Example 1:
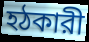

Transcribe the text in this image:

হঠকারী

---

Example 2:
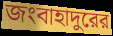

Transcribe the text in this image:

জংবাহাদুরের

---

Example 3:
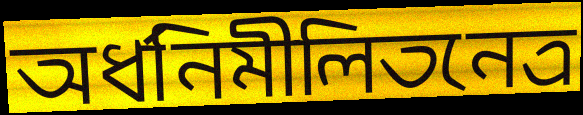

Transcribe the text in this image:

অর্ধনিমীলিতনেত্র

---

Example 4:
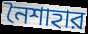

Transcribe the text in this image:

নৈশাহার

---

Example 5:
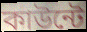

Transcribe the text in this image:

কাউন্টে